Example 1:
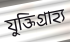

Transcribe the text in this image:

যুক্তিগ্রাহ্য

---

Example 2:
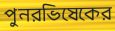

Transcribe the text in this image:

পুনরভিষেকের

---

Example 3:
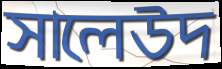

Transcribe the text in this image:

সালেউদ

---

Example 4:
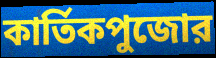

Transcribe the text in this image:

কার্তিকপুজোর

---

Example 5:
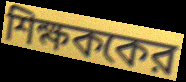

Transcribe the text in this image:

শিক্ষককের